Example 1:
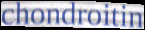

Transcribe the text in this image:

chondroitin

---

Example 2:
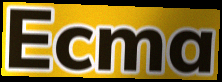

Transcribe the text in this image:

Ecma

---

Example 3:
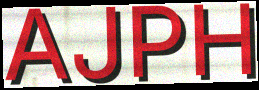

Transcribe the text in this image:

AJPH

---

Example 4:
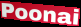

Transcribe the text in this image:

Poonai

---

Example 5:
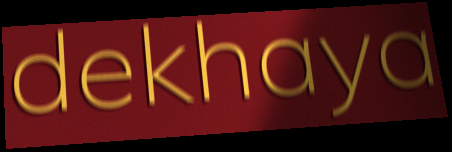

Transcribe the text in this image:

dekhaya